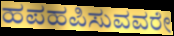
ಹಪಹಪಿಸುವವರೇ